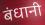
बंधानी